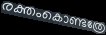
രക്തംകൊണ്ടത്രേ